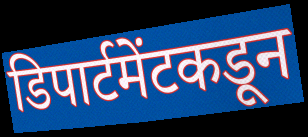
डिपार्टमेंटकडून